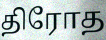
திரோத